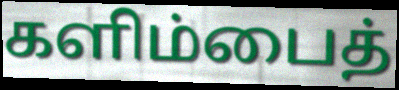
களிம்பைத்